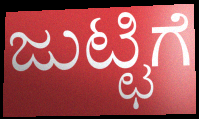
ಜುಟ್ಟಿಗೆ